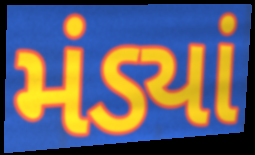
મંડ્યાં